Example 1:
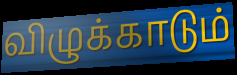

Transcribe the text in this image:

விழுக்காடும்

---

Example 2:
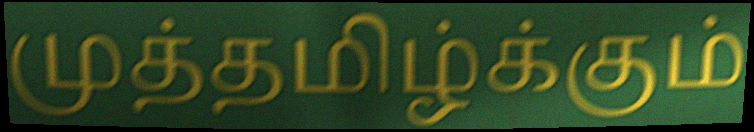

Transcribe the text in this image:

முத்தமிழ்க்கும்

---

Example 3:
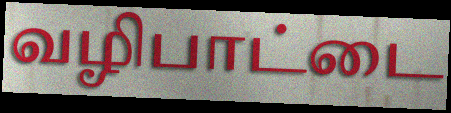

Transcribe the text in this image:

வழிபாட்டை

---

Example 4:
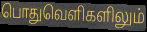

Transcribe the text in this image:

பொதுவெளிகளிலும்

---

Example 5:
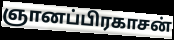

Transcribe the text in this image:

ஞானப்பிரகாசன்